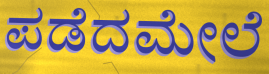
ಪಡೆದಮೇಲೆ